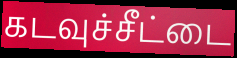
கடவுச்சீட்டை